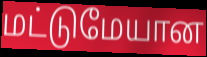
மட்டுமேயான